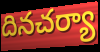
దినచర్యా